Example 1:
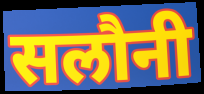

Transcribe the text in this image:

सलौनी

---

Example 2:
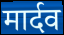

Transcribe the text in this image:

मार्दव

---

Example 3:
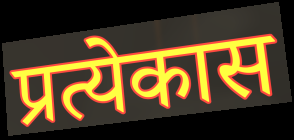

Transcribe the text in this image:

प्रत्येकास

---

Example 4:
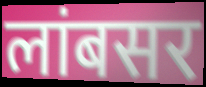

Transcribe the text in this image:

लांबसर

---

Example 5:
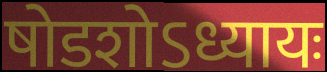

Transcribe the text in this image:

षोडशोऽध्यायः